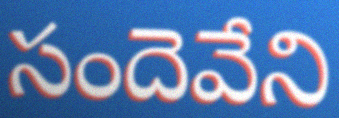
సందెవేని